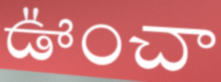
ఊంచా